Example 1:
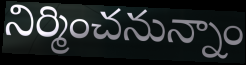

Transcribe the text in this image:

నిర్మించనున్నాం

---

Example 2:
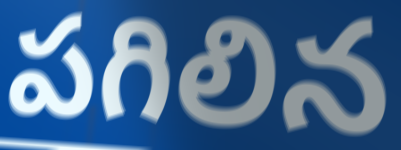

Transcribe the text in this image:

పగిలిన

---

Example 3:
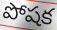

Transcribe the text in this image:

పోషక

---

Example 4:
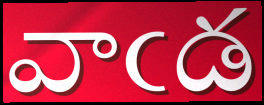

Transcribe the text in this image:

వాఁడ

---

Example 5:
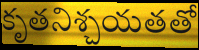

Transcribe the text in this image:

కృతనిశ్చయతతో